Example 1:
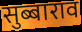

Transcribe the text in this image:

सुब्बाराव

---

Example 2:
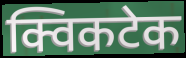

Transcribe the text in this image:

क्विकटेक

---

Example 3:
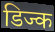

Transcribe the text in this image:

डिज्क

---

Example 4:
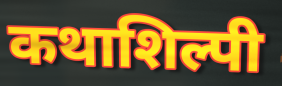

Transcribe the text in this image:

कथाशिल्पी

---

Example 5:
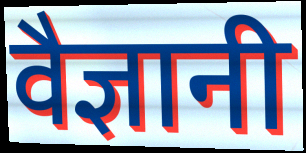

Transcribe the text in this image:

वैज्ञानी